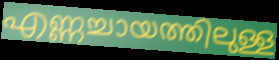
എണ്ണച്ചായത്തിലുള്ള